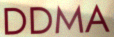
DDMA